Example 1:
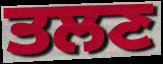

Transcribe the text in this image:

ਤਲਣ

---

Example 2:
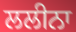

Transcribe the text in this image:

ਲਲੀਨਾ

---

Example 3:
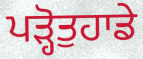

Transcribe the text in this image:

ਪੜ੍ਹੋਤੁਹਾਡੇ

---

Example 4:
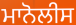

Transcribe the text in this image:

ਮਾਨੋਲੀਸ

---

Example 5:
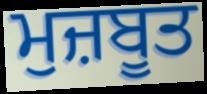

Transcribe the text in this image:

ਮੁਜ਼ਬੂਤ